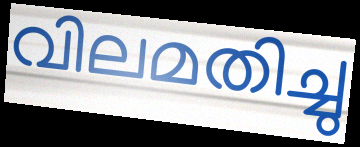
വിലമതിച്ചു